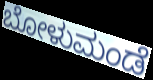
ಬೋಳುಮಂಡೆ